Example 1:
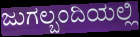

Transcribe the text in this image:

ಜುಗಲ್ಬಂದಿಯಲ್ಲಿ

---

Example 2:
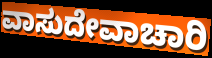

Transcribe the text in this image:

ವಾಸುದೇವಾಚಾರಿ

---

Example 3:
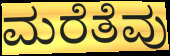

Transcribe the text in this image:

ಮರೆತೆವು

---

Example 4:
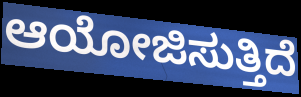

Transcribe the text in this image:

ಆಯೋಜಿಸುತ್ತಿದೆ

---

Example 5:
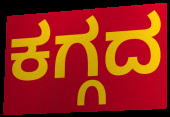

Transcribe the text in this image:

ಕಗ್ಗದ